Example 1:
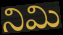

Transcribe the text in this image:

నిమి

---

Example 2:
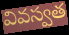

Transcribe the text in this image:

వివస్వత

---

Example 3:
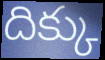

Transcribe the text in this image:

దిక్కు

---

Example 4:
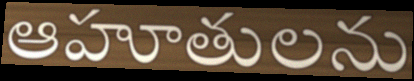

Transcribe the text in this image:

ఆహూతులను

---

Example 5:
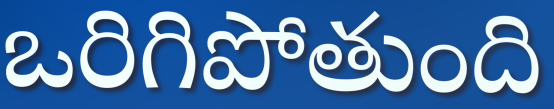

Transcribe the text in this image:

ఒరిగిపోతుంది